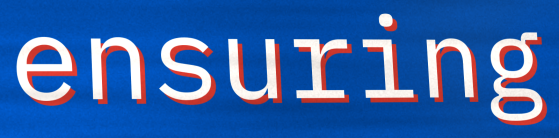
ensuring